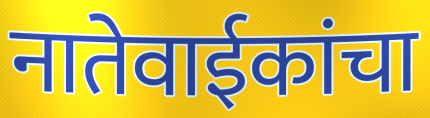
नातेवाईकांचा